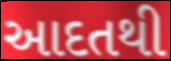
આદતથી